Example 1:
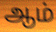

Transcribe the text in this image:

ஆம்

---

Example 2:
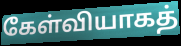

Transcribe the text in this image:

கேள்வியாகத்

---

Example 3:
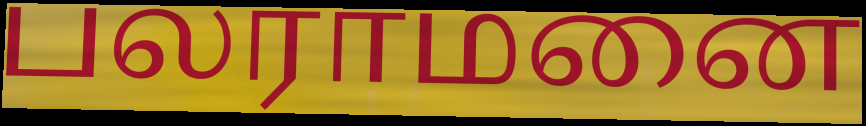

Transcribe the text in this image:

பலராமனை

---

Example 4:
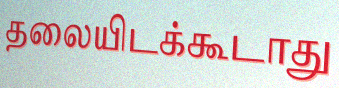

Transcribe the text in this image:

தலையிடக்கூடாது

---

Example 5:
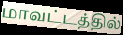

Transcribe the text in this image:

மாவட்டத்தில்